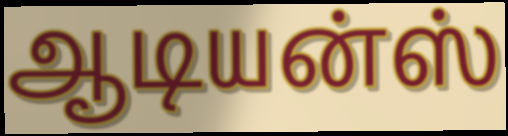
ஆடியன்ஸ்